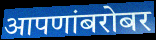
आपणांबरोबर